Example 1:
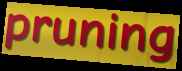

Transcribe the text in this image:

pruning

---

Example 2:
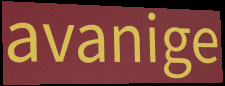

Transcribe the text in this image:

avanige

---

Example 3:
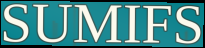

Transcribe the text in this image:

SUMIFS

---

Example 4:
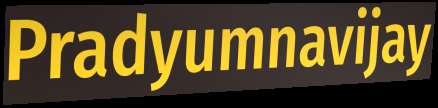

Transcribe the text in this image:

Pradyumnavijay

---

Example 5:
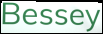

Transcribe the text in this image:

Bessey